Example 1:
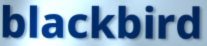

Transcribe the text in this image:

blackbird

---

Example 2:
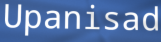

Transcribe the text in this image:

Upanisad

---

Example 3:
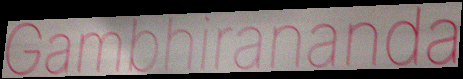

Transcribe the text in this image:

Gambhirananda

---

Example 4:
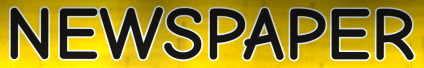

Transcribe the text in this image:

NEWSPAPER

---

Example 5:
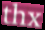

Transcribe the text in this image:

thx